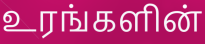
உரங்களின்